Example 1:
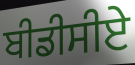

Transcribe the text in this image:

ਬੀਡੀਸੀਏ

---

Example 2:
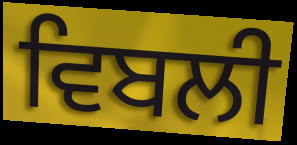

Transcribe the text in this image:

ਵਿਬਲੀ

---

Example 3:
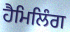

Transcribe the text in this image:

ਹੈਮਿਲਿੰਗ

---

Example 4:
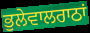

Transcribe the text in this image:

ਭੁਲੇਵਾਲਰਾਠਾਂ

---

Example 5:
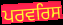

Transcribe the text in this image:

ਪਰਵਰਿਸ